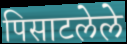
पिसाटलेले